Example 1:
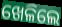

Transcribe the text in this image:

ଖେଳିଲେ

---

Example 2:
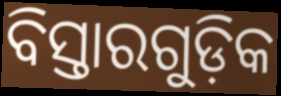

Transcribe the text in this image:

ବିସ୍ତାରଗୁଡ଼ିକ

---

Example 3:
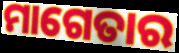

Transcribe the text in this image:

ମାଗେତାର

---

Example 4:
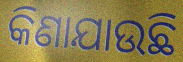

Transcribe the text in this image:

କିଣାଯାଉଛି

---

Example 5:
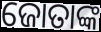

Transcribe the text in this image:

ଜୋତାଙ୍କ